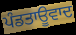
ਪੰਡਤਾਊਵਾਦ